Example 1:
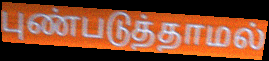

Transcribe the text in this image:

புண்படுத்தாமல்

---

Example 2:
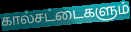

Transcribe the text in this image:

கால்சட்டைகளும்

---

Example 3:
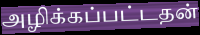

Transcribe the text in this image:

அழிக்கப்பட்டதன்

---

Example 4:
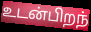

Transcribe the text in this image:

உடன்பிறந்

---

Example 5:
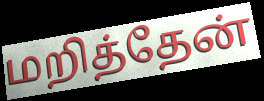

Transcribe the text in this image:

மறித்தேன்